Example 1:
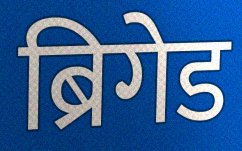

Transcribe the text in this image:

ब्रिगेड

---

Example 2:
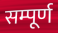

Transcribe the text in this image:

सम्पूर्ण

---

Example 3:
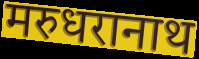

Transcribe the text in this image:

मरुधरानाथ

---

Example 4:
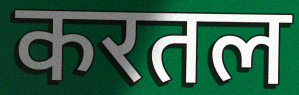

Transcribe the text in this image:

करतल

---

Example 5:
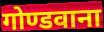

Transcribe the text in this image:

गोण्डवाना